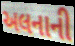
અલનાની